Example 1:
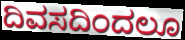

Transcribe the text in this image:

ದಿವಸದಿಂದಲೂ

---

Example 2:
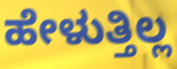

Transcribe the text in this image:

ಹೇಳುತ್ತಿಲ್ಲ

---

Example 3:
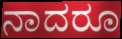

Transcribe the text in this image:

ನಾದರೂ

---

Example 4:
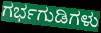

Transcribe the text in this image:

ಗರ್ಭಗುಡಿಗಳು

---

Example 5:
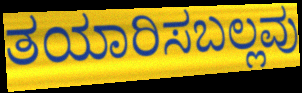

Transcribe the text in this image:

ತಯಾರಿಸಬಲ್ಲವು